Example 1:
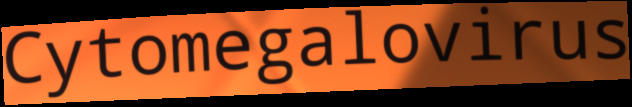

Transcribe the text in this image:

Cytomegalovirus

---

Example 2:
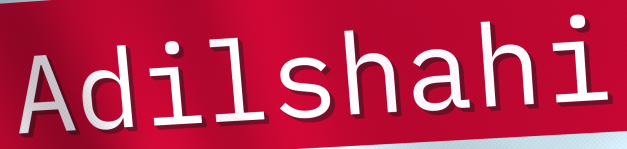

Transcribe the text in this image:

Adilshahi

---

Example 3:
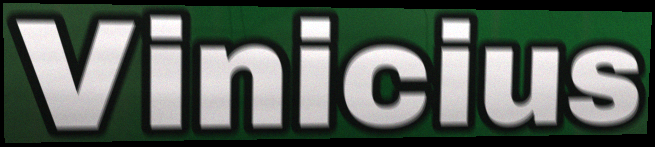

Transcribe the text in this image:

Vinicius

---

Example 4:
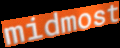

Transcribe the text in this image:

midmost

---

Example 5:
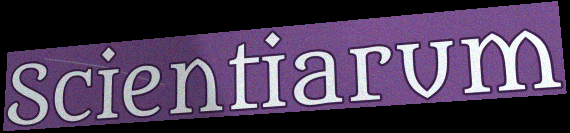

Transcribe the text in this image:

Scientiarum